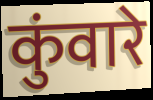
कुंवारे